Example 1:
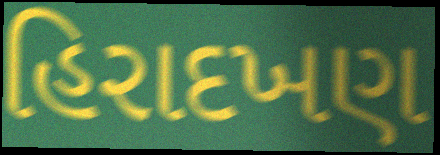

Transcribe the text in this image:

હિરાદખણ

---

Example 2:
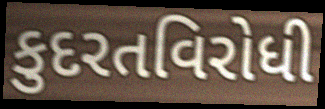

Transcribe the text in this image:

કુદરતવિરોધી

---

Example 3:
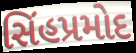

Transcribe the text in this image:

સિંહપ્રમોદ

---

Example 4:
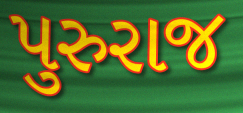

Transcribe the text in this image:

પુરુરાજ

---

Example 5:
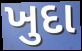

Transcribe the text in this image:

ખુદા